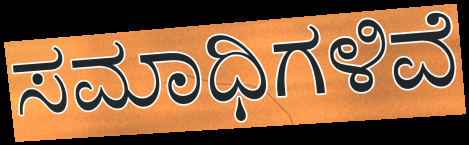
ಸಮಾಧಿಗಳಿವೆ